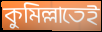
কুমিল্লাতেই